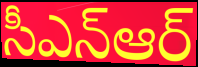
సీఎన్ఆర్